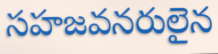
సహజవనరులైన